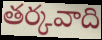
తర్కవాది